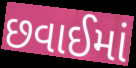
છવાઈમાં